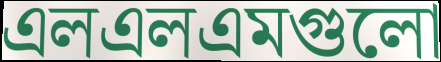
এলএলএমগুলো